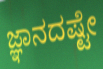
ಜ್ಞಾನದಷ್ಟೇ